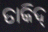
ତାକିଦ୍